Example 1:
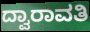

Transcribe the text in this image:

ದ್ವಾರಾವತಿ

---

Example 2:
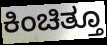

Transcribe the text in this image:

ಕಿಂಚಿತ್ತೂ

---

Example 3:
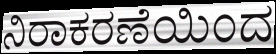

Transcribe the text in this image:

ನಿರಾಕರಣೆಯಿಂದ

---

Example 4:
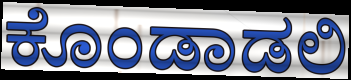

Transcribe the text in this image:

ಕೊಂಡಾಡಲಿ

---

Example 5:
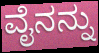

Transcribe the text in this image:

ವೈನನ್ನು